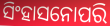
ସିଂହାସନୋପରି